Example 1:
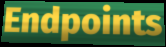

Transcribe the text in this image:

Endpoints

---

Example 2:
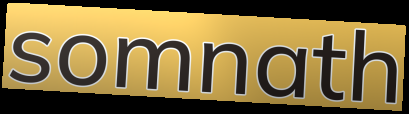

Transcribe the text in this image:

somnath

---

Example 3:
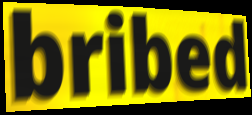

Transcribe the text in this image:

bribed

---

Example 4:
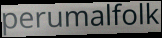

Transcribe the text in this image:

perumalfolk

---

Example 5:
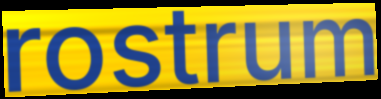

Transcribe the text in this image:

rostrum